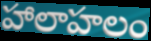
హాలాహలం